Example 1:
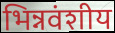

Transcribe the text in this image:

भिन्नवंशीय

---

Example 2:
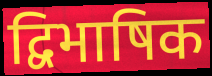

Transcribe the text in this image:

द्विभाषिक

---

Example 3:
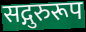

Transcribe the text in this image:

सद्गुरुरूप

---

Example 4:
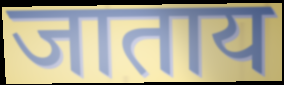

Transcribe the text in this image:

जाताय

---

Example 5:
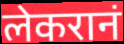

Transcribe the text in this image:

लेकरानं